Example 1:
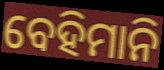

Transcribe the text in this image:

ବେହିମାନି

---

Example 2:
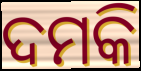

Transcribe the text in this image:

ଦମକି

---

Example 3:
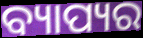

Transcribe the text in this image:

ବ୍ୟାପ୍ୟର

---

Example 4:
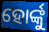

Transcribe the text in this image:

ହୋର୍ଙ୍କୁ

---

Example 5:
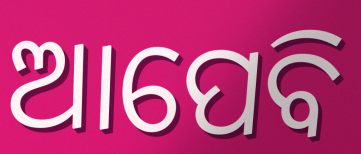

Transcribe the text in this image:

ଆପେବି